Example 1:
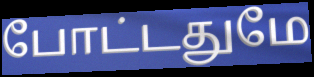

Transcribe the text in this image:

போட்டதுமே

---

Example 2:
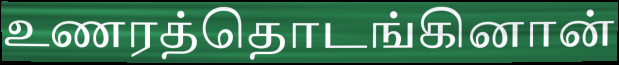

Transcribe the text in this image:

உணரத்தொடங்கினான்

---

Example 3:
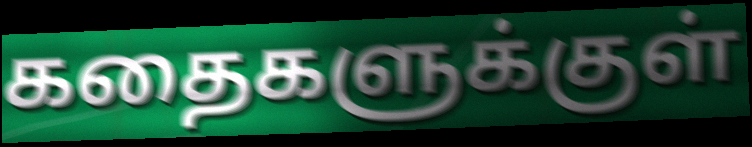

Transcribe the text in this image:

கதைகளுக்குள்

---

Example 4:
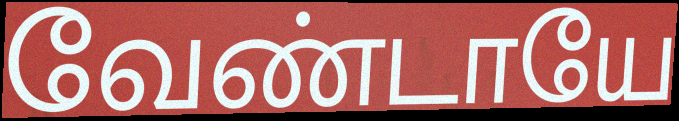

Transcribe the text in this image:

வேண்டாயே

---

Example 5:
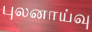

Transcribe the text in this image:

புலனாய்வு